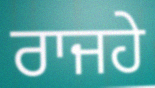
ਰਾਜਹੇ